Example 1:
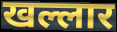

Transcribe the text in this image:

खल्लार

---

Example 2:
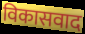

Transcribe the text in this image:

विकासवाद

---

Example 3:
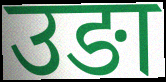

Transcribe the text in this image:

उङा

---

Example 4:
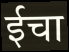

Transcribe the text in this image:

ईचा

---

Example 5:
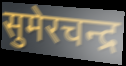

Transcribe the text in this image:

सुमेरचन्द्र